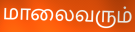
மாலைவரும்